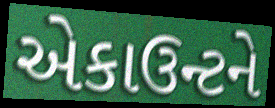
એકાઉન્ટને